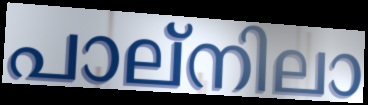
പാല്നിലാ